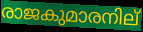
രാജകുമാരനില്